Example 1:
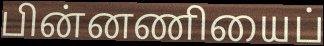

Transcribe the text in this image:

பின்னணியைப்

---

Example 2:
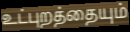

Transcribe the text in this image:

உட்புறத்தையும்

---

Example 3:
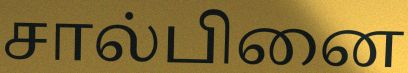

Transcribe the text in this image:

சால்பினை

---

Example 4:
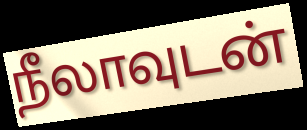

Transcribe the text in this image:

நீலாவுடன்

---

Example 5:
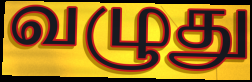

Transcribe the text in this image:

வழுது